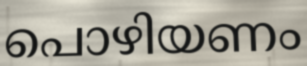
പൊഴിയണം